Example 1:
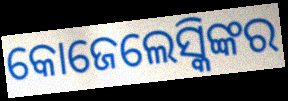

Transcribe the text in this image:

କୋଜେଲେସ୍କିଙ୍କର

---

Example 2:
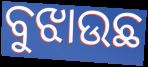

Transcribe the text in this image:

ବୁଝାଉଛ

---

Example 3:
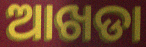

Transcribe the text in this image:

ଆଖଡା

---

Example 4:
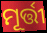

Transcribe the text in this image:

ମୂର୍ତ୍ତୀ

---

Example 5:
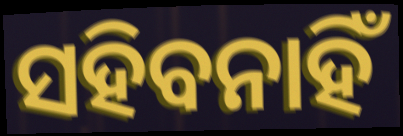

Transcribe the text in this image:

ସହିବନାହିଁ